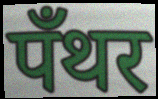
पँथर